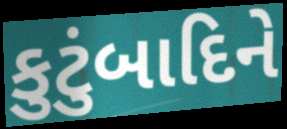
કુટુંબાદિને